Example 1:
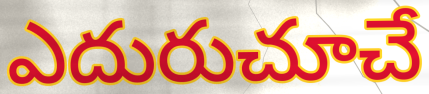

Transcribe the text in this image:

ఎదురుచూచే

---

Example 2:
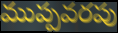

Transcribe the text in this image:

ముప్పవరపు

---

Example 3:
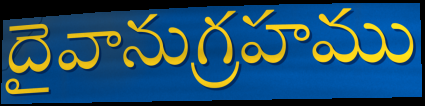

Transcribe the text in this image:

దైవానుగ్రహము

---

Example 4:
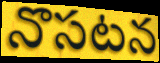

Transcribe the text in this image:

నొసటన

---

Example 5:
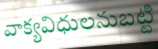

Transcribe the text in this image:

వాక్యవిధులనుబట్టి